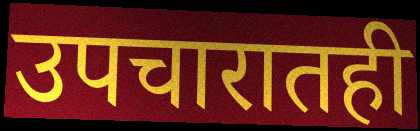
उपचारातही